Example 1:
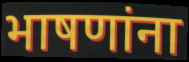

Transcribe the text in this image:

भाषणांना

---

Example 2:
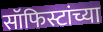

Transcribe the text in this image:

सॉफिस्टांच्या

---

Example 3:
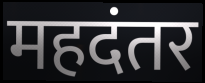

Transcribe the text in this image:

महदंतर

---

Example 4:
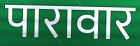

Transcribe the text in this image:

पारावार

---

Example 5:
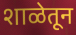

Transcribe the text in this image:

शाळेतून